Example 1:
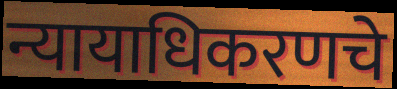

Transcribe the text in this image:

न्यायाधिकरणचे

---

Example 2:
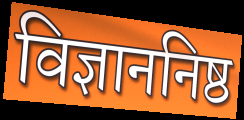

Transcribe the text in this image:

विज्ञाननिष्ठ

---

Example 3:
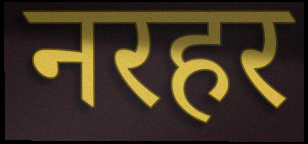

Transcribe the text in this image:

नरहर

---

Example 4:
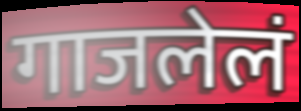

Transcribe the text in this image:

गाजलेलं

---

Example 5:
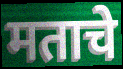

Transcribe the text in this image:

मताचे